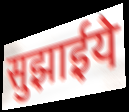
सुझाईये